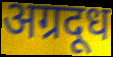
अग्रदूध